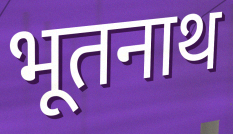
भूतनाथ